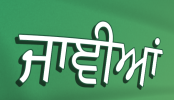
ਜਾਞੀਆਂ